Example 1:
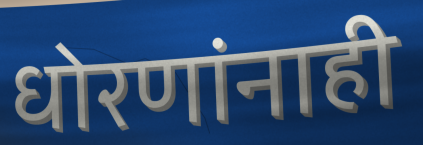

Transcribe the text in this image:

धोरणांनाही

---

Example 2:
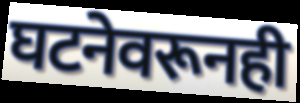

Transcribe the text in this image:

घटनेवरूनही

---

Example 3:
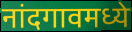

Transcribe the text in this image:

नांदगावमध्ये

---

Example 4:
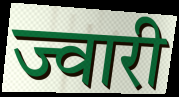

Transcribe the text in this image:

ज्वारी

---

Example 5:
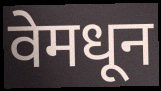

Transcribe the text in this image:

वेमधून